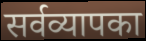
सर्वव्यापका